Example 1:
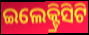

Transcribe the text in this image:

ଇଲେକ୍ଟ୍ରିସିଟି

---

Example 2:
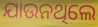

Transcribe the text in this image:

ଯାଉନଥିଲେ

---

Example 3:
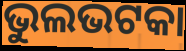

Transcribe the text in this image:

ଭୁଲଭଟକା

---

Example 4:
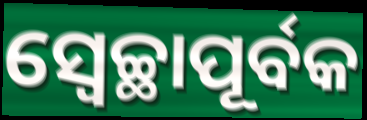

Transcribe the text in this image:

ସ୍ଵେଚ୍ଛାପୂର୍ବକ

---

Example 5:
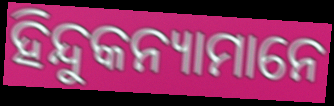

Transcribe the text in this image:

ହିନ୍ଦୁକନ୍ୟାମାନେ